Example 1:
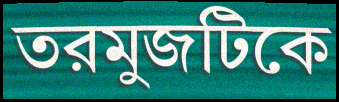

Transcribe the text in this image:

তরমুজটিকে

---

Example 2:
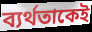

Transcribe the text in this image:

ব্যর্থতাকেই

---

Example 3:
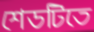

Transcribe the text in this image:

শেডটিতে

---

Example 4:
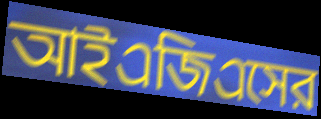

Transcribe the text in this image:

আইএজিএসের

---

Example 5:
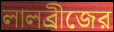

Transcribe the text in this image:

লালব্রীজের